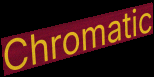
Chromatic